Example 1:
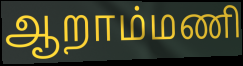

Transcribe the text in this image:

ஆறாம்மணி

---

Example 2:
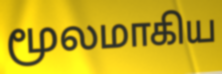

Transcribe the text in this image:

மூலமாகிய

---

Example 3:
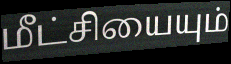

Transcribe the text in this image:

மீட்சியையும்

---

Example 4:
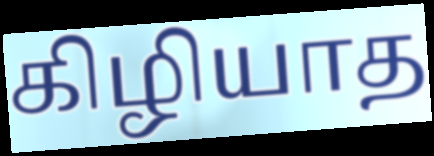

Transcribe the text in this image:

கிழியாத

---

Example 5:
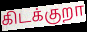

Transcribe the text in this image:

கிடக்குறா